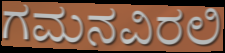
ಗಮನವಿರಲಿ